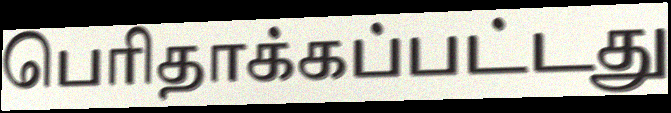
பெரிதாக்கப்பட்டது